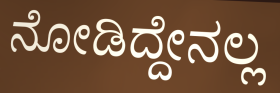
ನೋಡಿದ್ದೇನಲ್ಲ